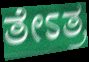
ತೇಽತ್ರ